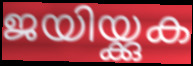
ജയിയ്ക്കുക